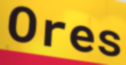
Ores